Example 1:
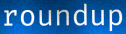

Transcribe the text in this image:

roundup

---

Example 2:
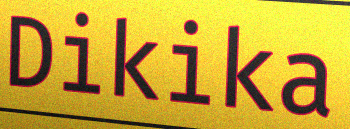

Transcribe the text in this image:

Dikika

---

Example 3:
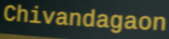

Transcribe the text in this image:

Chivandagaon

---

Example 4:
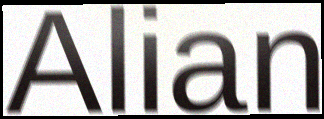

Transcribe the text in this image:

Alian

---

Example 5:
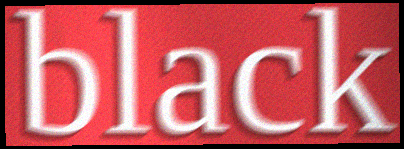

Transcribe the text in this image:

black